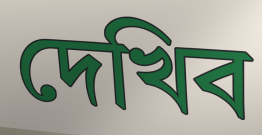
দেখিব